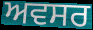
ਅਵਸਰ